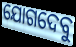
ଯୋଗଦେବୁ